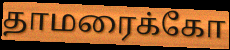
தாமரைக்கோ